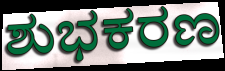
ಶುಭಕರಣ